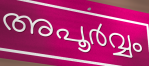
അപൂർവ്വം